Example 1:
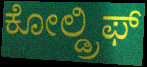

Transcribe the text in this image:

ಕೋಲ್ಡ್ರಿಫ್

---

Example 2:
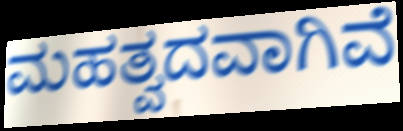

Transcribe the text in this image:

ಮಹತ್ವದವಾಗಿವೆ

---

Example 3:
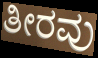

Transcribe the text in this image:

ತೀರವು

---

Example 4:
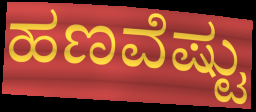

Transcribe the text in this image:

ಹಣವೆಷ್ಟು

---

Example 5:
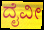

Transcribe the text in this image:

ದೈವೀ